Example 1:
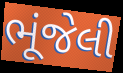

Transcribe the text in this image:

ભૂંજેલી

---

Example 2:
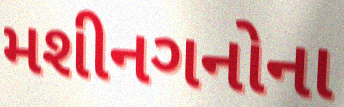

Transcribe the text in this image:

મશીનગનોના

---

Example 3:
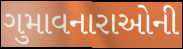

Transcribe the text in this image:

ગુમાવનારાઓની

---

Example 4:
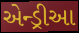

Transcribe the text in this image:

એન્ડ્રીઆ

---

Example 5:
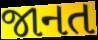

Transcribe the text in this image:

જાનત